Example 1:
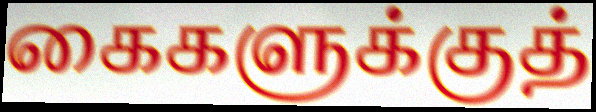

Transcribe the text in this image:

கைகளுக்குத்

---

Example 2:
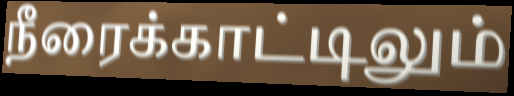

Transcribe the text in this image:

நீரைக்காட்டிலும்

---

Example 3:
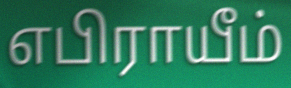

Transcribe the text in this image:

எபிராயீம்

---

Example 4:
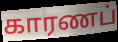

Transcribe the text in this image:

காரணப்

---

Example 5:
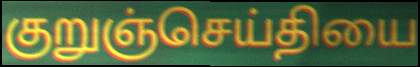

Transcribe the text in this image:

குறுஞ்செய்தியை